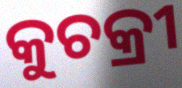
କୁଚକ୍ରୀ